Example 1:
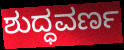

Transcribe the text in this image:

ಶುದ್ಧವರ್ಣ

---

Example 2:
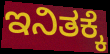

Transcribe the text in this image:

ಇನಿತಕ್ಕೆ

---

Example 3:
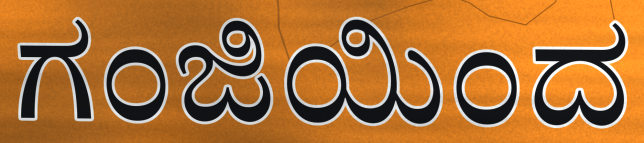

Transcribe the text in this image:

ಗಂಜಿಯಿಂದ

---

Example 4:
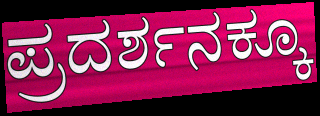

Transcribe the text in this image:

ಪ್ರದರ್ಶನಕ್ಕೂ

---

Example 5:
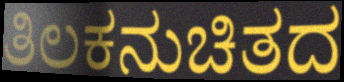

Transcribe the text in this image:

ತಿಲಕನುಚಿತದ